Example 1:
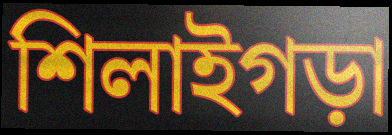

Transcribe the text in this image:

শিলাইগড়া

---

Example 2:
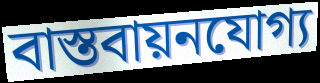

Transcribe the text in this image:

বাস্তবায়নযোগ্য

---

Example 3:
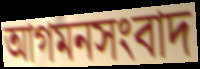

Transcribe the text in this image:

আগমনসংবাদ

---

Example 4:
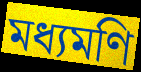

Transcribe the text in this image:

মধ্যমণি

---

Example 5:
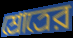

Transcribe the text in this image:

শ্রোত্রের